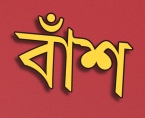
বাঁশ